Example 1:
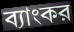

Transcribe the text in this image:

ব্যাংকর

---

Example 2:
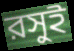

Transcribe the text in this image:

রসুই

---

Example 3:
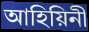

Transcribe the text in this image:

আহিয়িনী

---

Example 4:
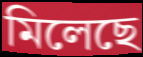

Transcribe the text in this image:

মিলেছে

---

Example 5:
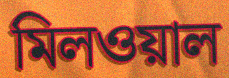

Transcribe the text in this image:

মিলওয়াল